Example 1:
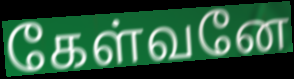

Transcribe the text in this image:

கேள்வனே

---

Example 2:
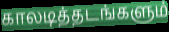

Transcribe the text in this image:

காலடித்தடங்களும்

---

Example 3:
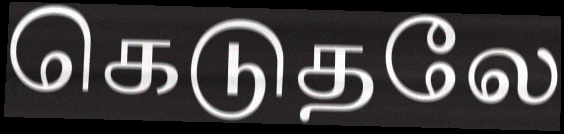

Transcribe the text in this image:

கெடுதலே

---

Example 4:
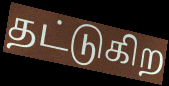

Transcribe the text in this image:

தட்டுகிற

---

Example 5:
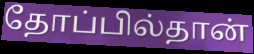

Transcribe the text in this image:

தோப்பில்தான்